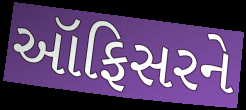
ઑફિસરને